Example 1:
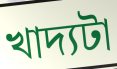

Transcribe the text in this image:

খাদ্যটা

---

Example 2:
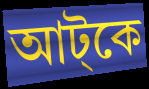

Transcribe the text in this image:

আট্কে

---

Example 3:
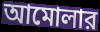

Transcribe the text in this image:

আমোলার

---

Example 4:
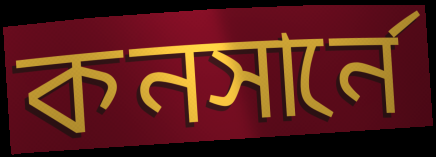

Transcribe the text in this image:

কনসার্নে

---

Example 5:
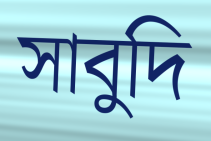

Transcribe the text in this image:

সাবুদি